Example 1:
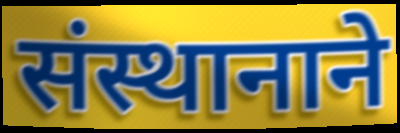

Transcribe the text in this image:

संस्थानाने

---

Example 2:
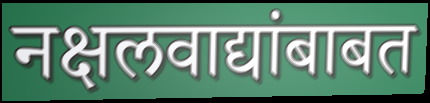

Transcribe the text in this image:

नक्षलवाद्यांबाबत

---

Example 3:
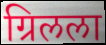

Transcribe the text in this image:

ग्रिलला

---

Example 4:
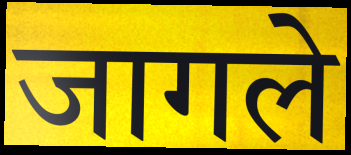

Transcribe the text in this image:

जागले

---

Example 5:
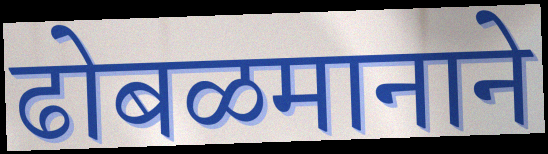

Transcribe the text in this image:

ढोबळमानाने